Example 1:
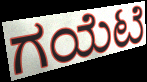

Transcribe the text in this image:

ಗಯೆಟೆ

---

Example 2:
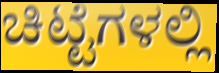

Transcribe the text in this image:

ಚಿಟ್ಟೆಗಳಲ್ಲಿ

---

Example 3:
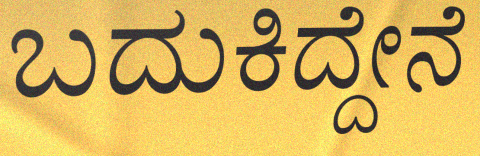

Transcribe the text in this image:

ಬದುಕಿದ್ದೇನೆ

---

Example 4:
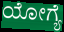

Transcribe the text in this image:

ಯೋಗ್ಯೆ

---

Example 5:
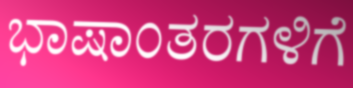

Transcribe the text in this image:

ಭಾಷಾಂತರಗಳಿಗೆ